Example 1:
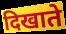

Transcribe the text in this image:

दिखाते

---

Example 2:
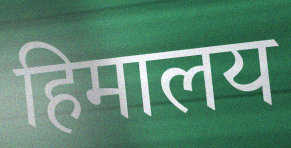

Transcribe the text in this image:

हिमालय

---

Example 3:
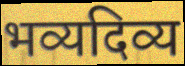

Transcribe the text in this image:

भव्यदिव्य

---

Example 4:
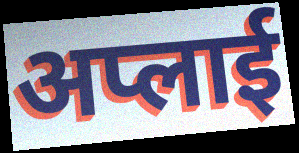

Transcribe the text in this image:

अप्लाई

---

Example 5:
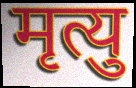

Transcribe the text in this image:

मृत्यु